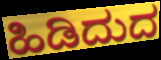
ಹಿಡಿದುದ